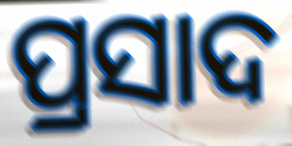
ପ୍ରସାଦ